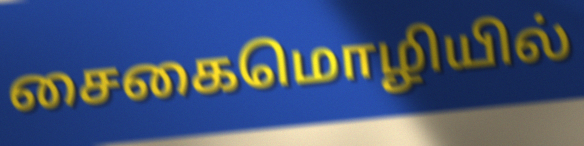
சைகைமொழியில்